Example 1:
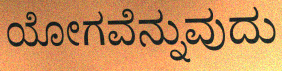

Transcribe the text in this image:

ಯೋಗವೆನ್ನುವುದು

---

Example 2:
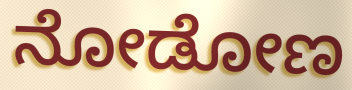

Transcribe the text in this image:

ನೋಡೋಣ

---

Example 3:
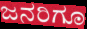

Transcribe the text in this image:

ಜನರಿಗೂ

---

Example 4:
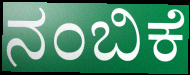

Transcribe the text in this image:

ನಂಬಿಕೆ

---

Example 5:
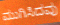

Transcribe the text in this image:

ಮುಗಿಸಿದವು